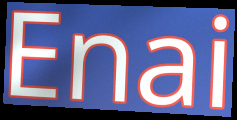
Enai